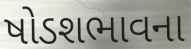
ષોડશભાવના